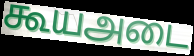
கூயஅடை